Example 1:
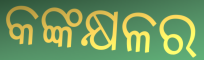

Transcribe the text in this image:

କଙ୍କକ୍ଷଳର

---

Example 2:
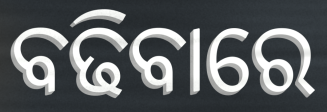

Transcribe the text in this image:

ବଢିବାରେ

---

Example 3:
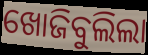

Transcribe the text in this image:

ଖୋଜିବୁଲିଲା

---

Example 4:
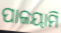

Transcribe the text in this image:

ପାଳୟାମି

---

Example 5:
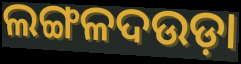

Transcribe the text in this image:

ଲଙ୍ଗଳଦଉଡ଼ା